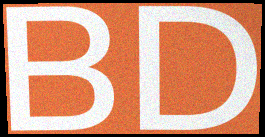
BD